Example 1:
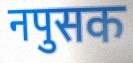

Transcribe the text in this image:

नपुसक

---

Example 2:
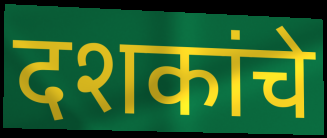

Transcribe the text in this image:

दशकांचे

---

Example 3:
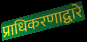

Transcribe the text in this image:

प्राधिकरणाद्वारे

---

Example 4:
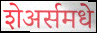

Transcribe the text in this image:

शेअर्समधे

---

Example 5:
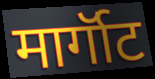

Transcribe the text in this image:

मार्गॉट